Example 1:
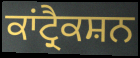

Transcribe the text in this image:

ਕਾਂਟ੍ਰੈਕਸ਼ਨ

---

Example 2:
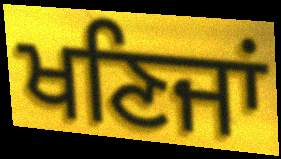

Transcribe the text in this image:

ਖਣਿਜਾਂ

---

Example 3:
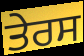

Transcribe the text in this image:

ਤੇਰਸ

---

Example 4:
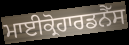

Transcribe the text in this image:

ਮਾਈਕ੍ਰੋਹਾਰਡਨੈੱਸ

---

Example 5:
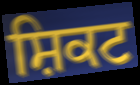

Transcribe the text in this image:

ਸ਼ਿਕਟ